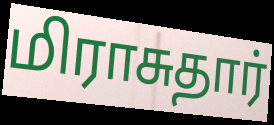
மிராசுதார்